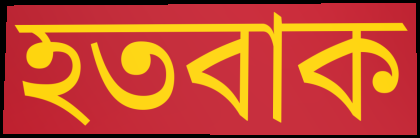
হতবাক